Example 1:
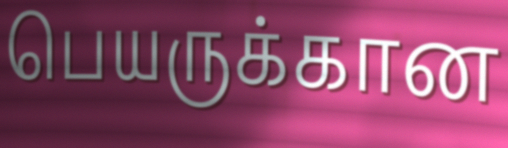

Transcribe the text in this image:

பெயருக்கான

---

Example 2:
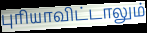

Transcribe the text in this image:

புரியாவிட்டாலும்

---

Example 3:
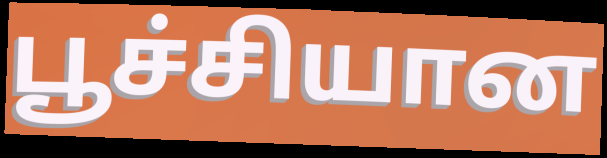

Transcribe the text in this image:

பூச்சியான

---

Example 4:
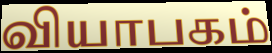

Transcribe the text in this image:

வியாபகம்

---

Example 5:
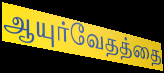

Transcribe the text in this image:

ஆயுர்வேதத்தை